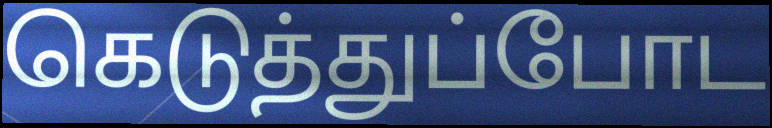
கெடுத்துப்போட